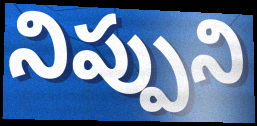
నిప్పుని